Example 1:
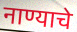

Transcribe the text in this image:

नाण्याचे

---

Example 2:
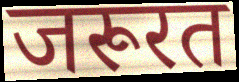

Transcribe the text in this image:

जरूरत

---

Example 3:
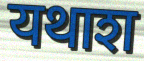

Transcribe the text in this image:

यथाश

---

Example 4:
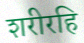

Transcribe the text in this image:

शरीरहि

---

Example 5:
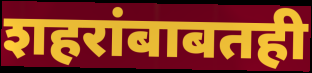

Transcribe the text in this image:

शहरांबाबतही